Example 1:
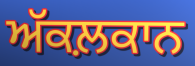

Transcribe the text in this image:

ਅੱਕਲ਼ਕਾਨ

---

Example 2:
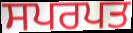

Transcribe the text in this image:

ਸਪਰਪਤ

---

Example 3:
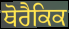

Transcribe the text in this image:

ਥੋਰੈਕਿਕ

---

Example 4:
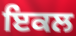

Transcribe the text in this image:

ਇਕਲ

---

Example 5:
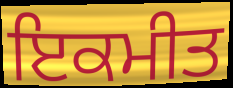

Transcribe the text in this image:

ਇਕਮੀਤ